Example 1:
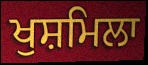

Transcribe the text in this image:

ਖੁਸ਼ਮਿਲਾ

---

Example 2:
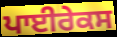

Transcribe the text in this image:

ਪਾਈਰੇਕਸ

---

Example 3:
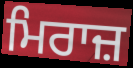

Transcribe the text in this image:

ਮਿਰਾਜ਼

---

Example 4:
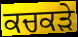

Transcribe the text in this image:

ਕਚਕੜੇ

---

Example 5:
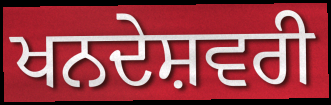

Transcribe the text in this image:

ਖਨਦੇਸ਼ਵਰੀ